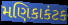
મણિકાકંટક